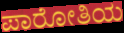
ಪಾರೋತಿಯ